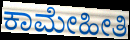
ಕಾಮೇಹೀತಿ